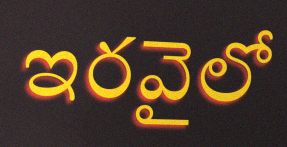
ఇరవైలో